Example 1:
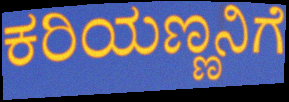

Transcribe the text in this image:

ಕರಿಯಣ್ಣನಿಗೆ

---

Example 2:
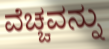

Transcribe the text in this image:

ವೆಚ್ಚವನ್ನು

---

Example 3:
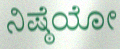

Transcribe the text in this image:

ನಿಷ್ಠೆಯೋ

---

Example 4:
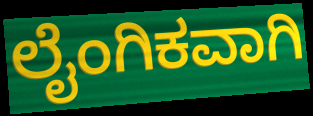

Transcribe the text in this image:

ಲೈಂಗಿಕವಾಗಿ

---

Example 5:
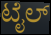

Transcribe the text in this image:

ಟೈಲ್